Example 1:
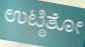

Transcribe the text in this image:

ಉಟ್ಠಿತೋ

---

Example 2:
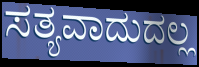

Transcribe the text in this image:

ಸತ್ಯವಾದುದಲ್ಲ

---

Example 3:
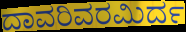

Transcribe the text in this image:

ದಾವರಿವರಮಿರ್ದ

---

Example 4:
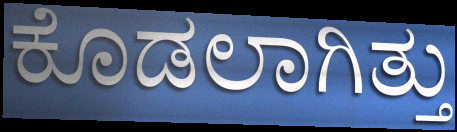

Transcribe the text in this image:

ಕೊಡಲಾಗಿತ್ತು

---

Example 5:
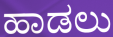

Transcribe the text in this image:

ಹಾಡಲು